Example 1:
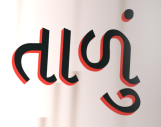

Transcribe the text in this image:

તાળું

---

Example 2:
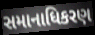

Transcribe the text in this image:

સમાનાધિકરણ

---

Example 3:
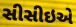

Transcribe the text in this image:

સીસીઇએ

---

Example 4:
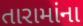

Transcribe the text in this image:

તારામાંના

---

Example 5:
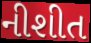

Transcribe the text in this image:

નીશીત